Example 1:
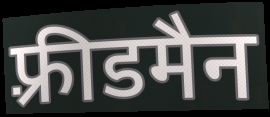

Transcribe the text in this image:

फ़्रीडमैन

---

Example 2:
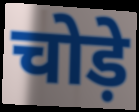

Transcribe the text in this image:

चोड़े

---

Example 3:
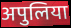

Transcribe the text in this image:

अपुलिया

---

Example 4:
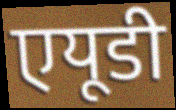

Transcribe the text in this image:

एयूडी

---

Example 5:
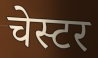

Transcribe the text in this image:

चेस्टर